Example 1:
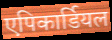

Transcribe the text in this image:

एपिकार्डियल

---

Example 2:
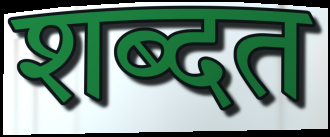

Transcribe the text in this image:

शब्दत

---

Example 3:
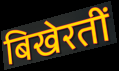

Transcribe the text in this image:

बिखेरतीं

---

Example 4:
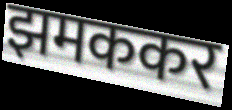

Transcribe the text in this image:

झमककर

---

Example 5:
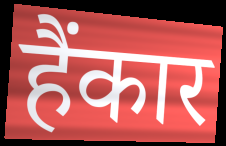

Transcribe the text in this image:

हैंकार